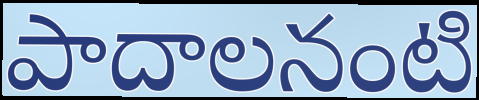
పాదాలనంటి